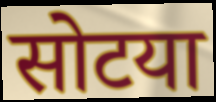
सोटया